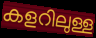
കളറിലുള്ള